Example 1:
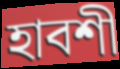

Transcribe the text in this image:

হাবশী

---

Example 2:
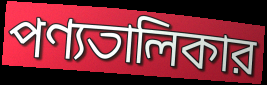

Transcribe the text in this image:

পণ্যতালিকার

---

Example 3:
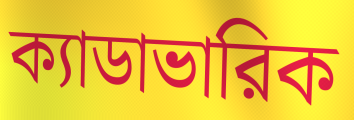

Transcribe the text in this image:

ক্যাডাভারিক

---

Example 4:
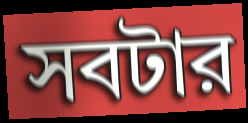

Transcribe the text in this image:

সবটার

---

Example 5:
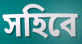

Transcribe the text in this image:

সহিবে